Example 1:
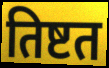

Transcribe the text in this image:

तिष्टत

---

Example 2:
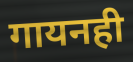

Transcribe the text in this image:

गायनही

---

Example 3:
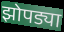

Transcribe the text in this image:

झोपड्या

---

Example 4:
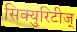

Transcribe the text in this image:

सिक्युरिटीज्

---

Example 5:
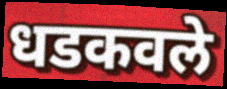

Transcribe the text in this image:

धडकवले